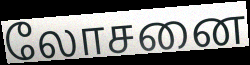
லோசனை